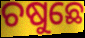
ଚଷୁଛେ